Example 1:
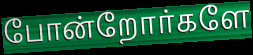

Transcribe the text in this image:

போன்றோர்களே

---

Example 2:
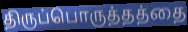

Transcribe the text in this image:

திருப்பொருத்தத்தை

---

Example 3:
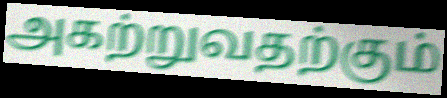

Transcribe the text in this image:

அகற்றுவதற்கும்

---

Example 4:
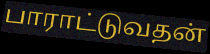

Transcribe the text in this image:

பாராட்டுவதன்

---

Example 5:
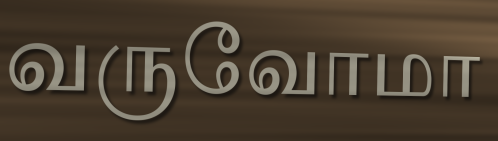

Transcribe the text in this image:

வருவோமா